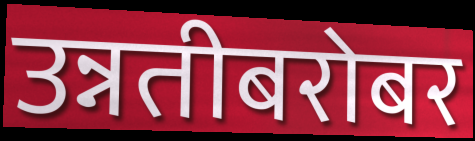
उन्नतीबरोबर